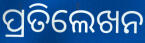
ପ୍ରତିଲେଖନ